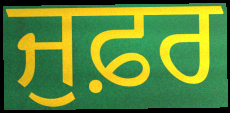
ਜੁਫ਼ਰ